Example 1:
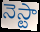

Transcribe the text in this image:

నెస్టా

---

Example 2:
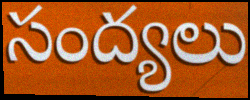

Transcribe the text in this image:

సంద్యలు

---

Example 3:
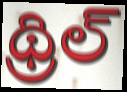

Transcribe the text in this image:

థ్రిల్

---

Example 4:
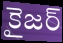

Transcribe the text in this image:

కైజర్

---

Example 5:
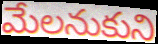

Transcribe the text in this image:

మేలనుకుని